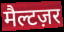
मैल्टज़र